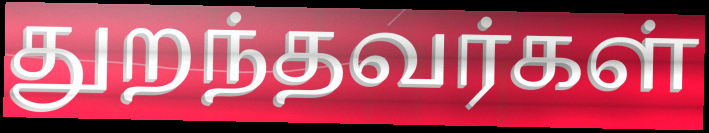
துறந்தவர்கள்